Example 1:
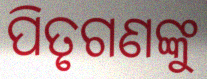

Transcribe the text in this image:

ପିତୃଗଣଙ୍କୁ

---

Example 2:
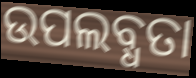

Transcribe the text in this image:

ଉପଲବ୍ଧତା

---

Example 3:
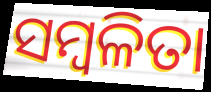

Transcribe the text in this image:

ସମ୍ବଳିତା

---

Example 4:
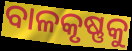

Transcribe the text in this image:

ବାଳକୃଷ୍ଣକୁ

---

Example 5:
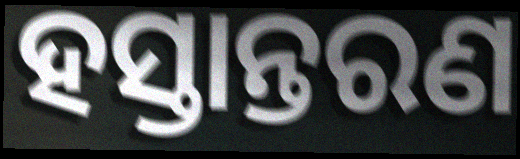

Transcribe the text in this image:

ହସ୍ତାନ୍ତରଣ